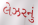
લેઝરનું